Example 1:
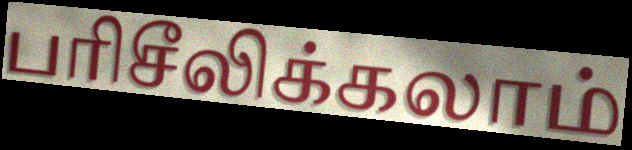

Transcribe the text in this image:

பரிசீலிக்கலாம்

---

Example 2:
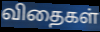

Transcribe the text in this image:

விதைகள்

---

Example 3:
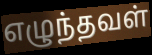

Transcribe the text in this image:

எழுந்தவள்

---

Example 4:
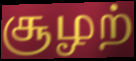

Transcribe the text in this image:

சூழற்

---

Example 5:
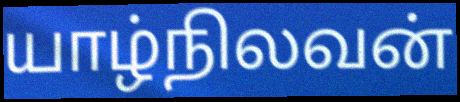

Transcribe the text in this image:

யாழ்நிலவன்